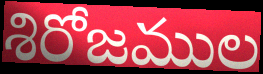
శిరోజముల